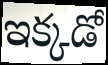
ఇక్కడో